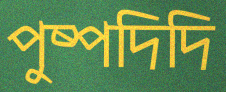
পুষ্পদিদি